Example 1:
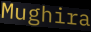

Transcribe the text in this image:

Mughira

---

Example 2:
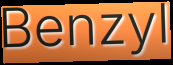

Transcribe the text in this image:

Benzyl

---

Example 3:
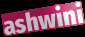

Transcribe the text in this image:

ashwini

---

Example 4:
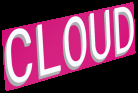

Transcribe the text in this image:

CLOUD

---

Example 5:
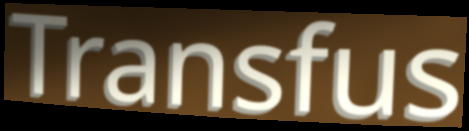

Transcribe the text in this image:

Transfus